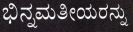
ಭಿನ್ನಮತೀಯರನ್ನು